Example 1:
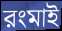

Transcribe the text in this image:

রংমাই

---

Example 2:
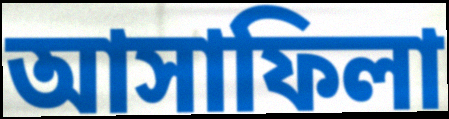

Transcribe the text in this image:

আসাফিলা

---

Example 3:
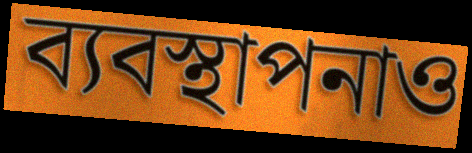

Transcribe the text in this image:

ব্যবস্থাপনাও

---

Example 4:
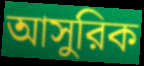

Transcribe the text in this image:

আসুরিক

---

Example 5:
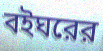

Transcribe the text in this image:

বইঘরের